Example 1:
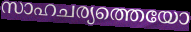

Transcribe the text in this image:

സാഹചര്യത്തെയോ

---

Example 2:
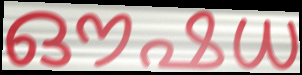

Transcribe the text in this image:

ഔഷധ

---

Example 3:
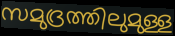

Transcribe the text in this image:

സമുദ്രത്തിലുമുള്ള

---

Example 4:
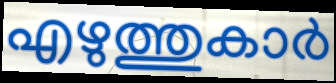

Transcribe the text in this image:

എഴുത്തുകാർ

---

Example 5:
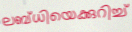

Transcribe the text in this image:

ലബ്ധിയെക്കുറിച്ച്